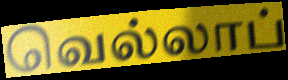
வெல்லாப்